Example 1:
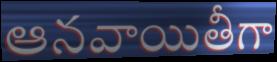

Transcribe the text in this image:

ఆనవాయితీగా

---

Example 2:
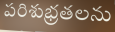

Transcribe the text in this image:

పరిశుభ్రతలను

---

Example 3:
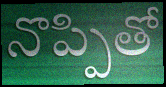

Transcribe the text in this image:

నొప్పితో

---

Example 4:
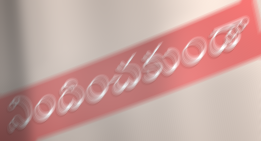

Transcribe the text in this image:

నిందించకుండా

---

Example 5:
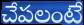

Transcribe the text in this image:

చేపలంటే